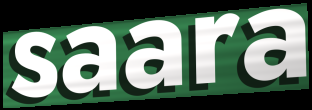
saara